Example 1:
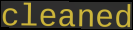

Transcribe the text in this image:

cleaned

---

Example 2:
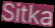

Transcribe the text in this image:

Sitka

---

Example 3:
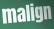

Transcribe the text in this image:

malign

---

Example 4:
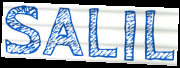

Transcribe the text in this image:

SALIL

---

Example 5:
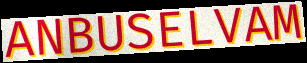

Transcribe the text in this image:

ANBUSELVAM